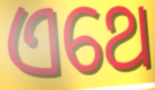
ଏଥେ